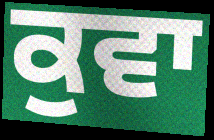
ਕੁਵਾ